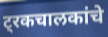
ट्रकचालकांचे